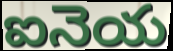
ఐనెయ